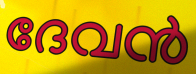
ദേവൻ